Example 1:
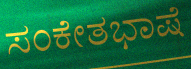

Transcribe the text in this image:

ಸಂಕೇತಭಾಷೆ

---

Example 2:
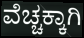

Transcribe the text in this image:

ವೆಚ್ಚಕ್ಕಾಗಿ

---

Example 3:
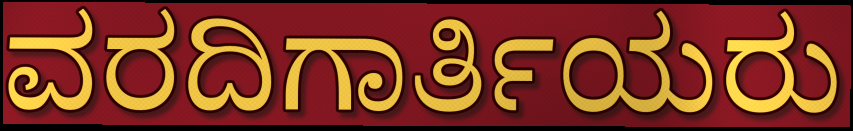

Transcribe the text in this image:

ವರದಿಗಾರ್ತಿಯರು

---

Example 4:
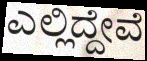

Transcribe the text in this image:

ಎಲ್ಲಿದ್ದೇವೆ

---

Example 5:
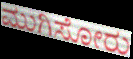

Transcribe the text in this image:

ಮುಗಿಸೋರು